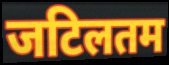
जटिलतम